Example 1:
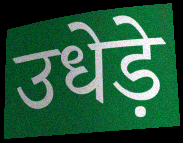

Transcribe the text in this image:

उधेड़े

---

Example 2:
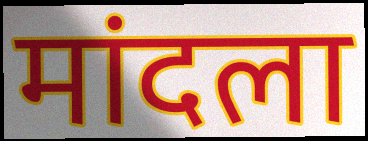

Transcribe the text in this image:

मांदला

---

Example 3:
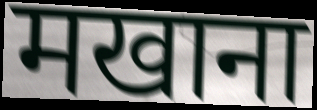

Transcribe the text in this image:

मखाना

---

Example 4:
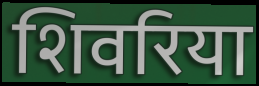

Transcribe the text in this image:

शिवरिया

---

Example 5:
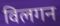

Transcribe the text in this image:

विलगन